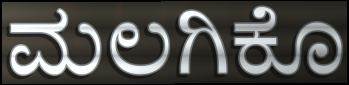
ಮಲಗಿಕೊ